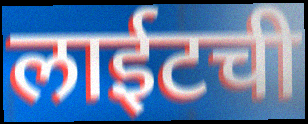
लाईटची